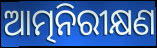
ଆତ୍ମନିରୀକ୍ଷଣ